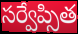
సర్వేప్సిత